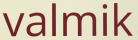
valmik